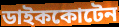
ডাইককোটেন